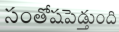
సంతోషపెడ్తుంది